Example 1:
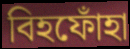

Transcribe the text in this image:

বিহফোঁহা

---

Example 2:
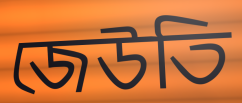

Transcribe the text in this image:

জেউতি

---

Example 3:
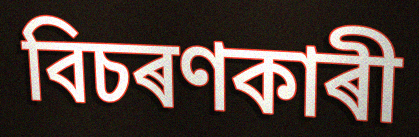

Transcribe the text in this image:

বিচৰণকাৰী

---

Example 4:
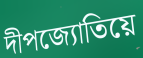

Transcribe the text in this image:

দীপজ্যোতিয়ে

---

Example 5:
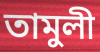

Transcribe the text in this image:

তামুলী